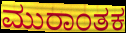
ಮುರಾಂತಕ